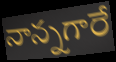
నాన్నగారే